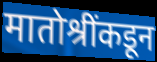
मातोश्रींकडून